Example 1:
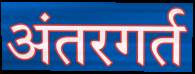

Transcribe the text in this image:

अंतरगर्त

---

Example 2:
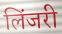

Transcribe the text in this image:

लिंजरी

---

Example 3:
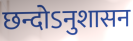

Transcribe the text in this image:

छन्दोऽनुशासन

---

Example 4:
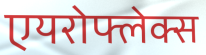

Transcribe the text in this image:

एयरोफ्लेक्स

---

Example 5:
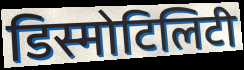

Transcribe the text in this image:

डिस्मोटिलिटी